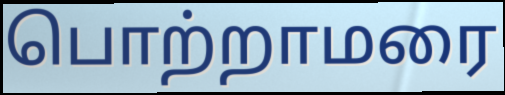
பொற்றாமரை